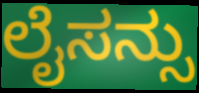
ಲೈಸನ್ಸು